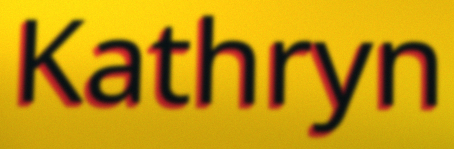
Kathryn